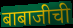
बाबाजीची